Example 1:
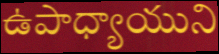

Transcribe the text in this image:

ఉపాధ్యాయుని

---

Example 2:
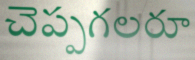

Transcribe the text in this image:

చెప్పగలరూ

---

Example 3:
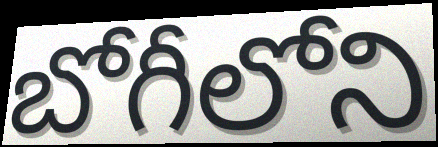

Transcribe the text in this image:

బోగీలోని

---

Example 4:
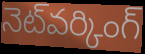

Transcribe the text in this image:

నెట్‌వర్కింగ్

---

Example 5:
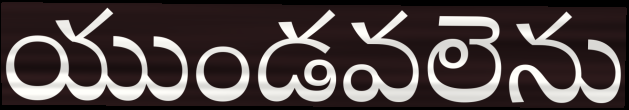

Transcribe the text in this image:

యుండవలెను